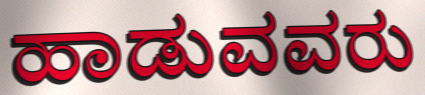
ಹಾಡುವವರು